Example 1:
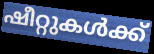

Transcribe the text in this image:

ഷീറ്റുകൾക്ക്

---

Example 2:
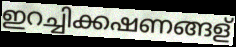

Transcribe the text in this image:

ഇറച്ചിക്കഷണങ്ങള്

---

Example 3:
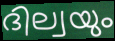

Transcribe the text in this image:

ദില്വയും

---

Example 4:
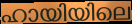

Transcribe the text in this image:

ഹായിയിലെ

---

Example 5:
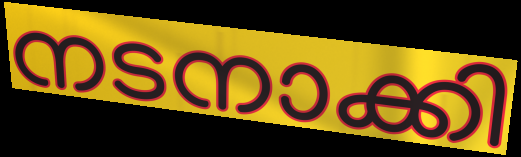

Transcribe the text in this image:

നടനാക്കി